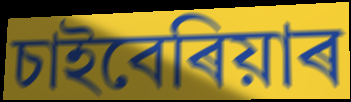
চাইবেৰিয়াৰ